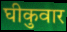
घीकुवार